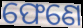
ଫେଣେ